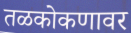
तळकोकणावर